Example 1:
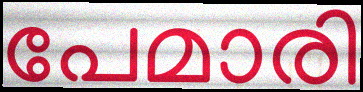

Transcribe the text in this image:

പേമാരി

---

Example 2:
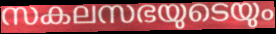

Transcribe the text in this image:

സകലസഭയുടെയും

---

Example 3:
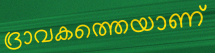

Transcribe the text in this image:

ദ്രാവകത്തെയാണ്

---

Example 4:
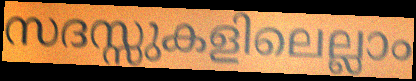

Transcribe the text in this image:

സദസ്സുകളിലെല്ലാം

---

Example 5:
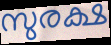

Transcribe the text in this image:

സുരക്ഷ